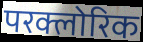
परक्लोरिक